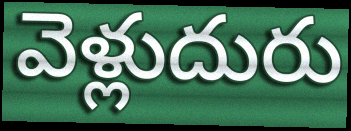
వెళ్లుదురు